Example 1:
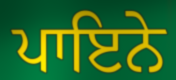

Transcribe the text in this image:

ਪਾਇਨੇ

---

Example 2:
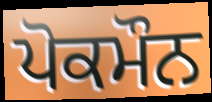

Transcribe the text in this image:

ਪੋਕਮੌਨ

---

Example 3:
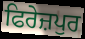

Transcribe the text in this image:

ਫਿਰੇਜ਼ਪੁਰ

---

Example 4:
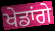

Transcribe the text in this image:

ਖੇਡਾਂਗੇ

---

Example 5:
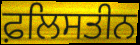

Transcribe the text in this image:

ਫ਼ਲਿਸਤੀਨ